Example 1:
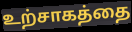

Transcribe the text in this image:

உற்சாகத்தை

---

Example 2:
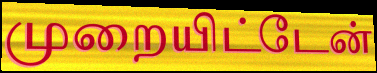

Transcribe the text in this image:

முறையிட்டேன்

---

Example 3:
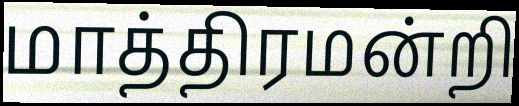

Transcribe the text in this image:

மாத்திரமன்றி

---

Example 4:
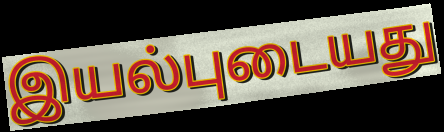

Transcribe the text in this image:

இயல்புடையது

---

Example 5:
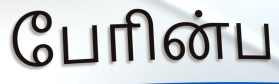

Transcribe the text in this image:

பேரின்ப